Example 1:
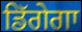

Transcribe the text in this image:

ਡਿੱਗੇਗਾ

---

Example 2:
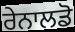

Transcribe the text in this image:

ਰੇਨਾਲਡੋ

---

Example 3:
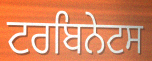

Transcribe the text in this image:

ਟਰਬਿਨੇਟਸ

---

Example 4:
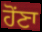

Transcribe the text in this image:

ਹੋਂਣਾ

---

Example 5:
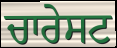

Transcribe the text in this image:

ਚਾਰੇਸਟ